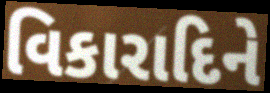
વિકારાદિને